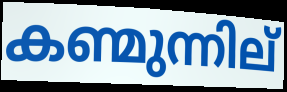
കണ്മുന്നില്